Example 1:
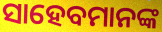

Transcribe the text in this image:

ସାହେବମାନଙ୍କ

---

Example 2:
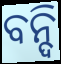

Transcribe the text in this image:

ବନ୍ଦି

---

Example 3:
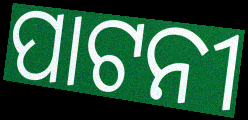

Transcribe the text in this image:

ପାଟନୀ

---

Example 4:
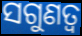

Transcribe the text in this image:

ସଗୁଣତ୍ଵ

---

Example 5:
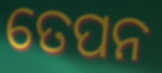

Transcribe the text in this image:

ତେପନ